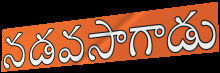
నడవసాగాడు